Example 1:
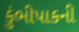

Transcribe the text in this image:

કુંભીપાકની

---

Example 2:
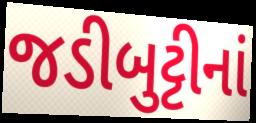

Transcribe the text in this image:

જડીબુટ્ટીનાં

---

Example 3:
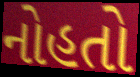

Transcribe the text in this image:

નોહતો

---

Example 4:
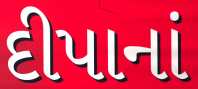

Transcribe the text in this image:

દીપાનાં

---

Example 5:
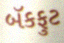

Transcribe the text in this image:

બૅકફુટ